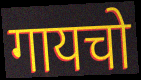
गायचो